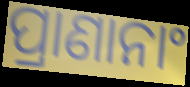
ପ୍ରାଣାନାଂ